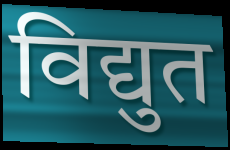
विद्युत